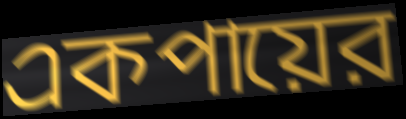
একপায়ের